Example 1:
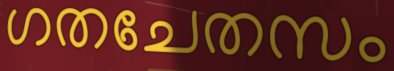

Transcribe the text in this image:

ഗതചേതസം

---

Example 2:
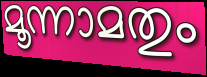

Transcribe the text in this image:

മൂന്നാമതും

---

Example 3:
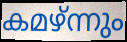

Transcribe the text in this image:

കമഴ്ന്നും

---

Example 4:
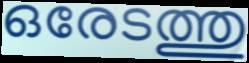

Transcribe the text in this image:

ഒരേടത്തു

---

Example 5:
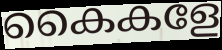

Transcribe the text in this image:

കൈകളേ